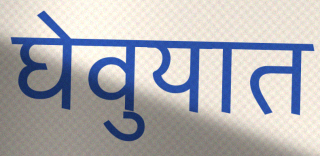
घेवुयात